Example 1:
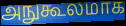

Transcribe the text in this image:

அநுகூலமாக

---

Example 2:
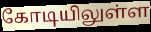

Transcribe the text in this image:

கோடியிலுள்ள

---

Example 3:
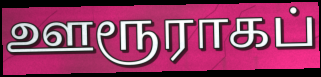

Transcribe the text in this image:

ஊரூராகப்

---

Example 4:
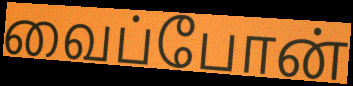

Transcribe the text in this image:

வைப்போன்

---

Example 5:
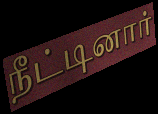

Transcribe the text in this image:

நீட்டினார்